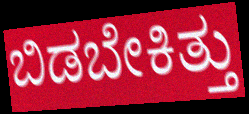
ಬಿಡಬೇಕಿತ್ತು